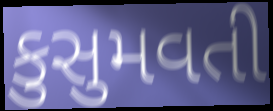
કુસુમવતી